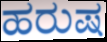
ಹರುಷ